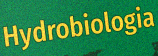
Hydrobiologia